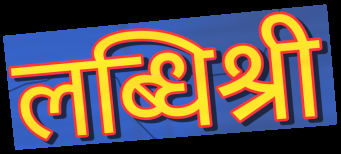
लब्धिश्री